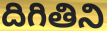
దిగితిని